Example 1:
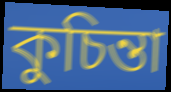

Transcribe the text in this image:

কুচিন্তা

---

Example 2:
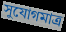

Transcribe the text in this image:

সুযোগমাত্র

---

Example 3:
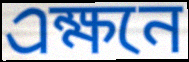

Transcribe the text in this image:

এক্ষনে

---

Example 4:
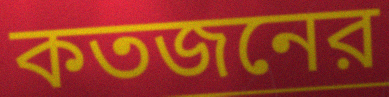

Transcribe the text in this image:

কতজনের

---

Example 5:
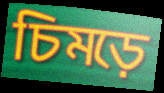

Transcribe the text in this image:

চিমড়ে